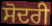
ਸੋਦਰੀ